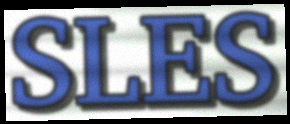
SLES